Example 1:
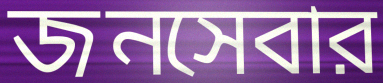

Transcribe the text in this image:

জনসেবার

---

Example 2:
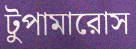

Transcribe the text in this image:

টুপামারোস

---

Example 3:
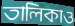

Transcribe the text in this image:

তালিকাও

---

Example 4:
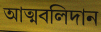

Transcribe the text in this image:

আত্মবলিদান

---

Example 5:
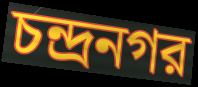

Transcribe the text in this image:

চন্দ্রনগর